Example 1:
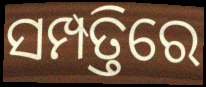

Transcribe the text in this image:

ସମ୍ପତ୍ତିରେ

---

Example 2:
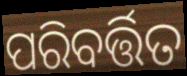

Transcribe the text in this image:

ପରିବର୍ତ୍ତିତ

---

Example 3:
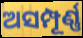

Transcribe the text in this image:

ଅସମ୍ପୂର୍ଣ୍ଣ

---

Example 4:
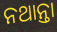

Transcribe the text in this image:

ନଥାନ୍ତା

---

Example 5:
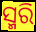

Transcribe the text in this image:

ସ୍ମରି